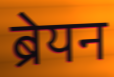
ब्रेयन